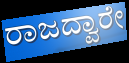
ರಾಜದ್ವಾರೇ